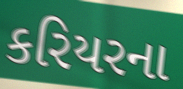
કરિયરના